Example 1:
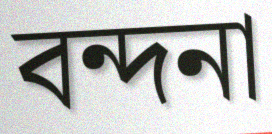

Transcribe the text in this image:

বন্দনা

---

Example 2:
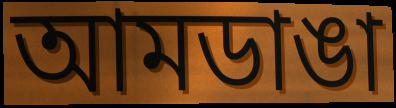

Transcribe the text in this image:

আমডাঙা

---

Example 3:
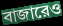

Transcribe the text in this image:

বাজারেও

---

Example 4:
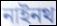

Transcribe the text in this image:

নাইনথ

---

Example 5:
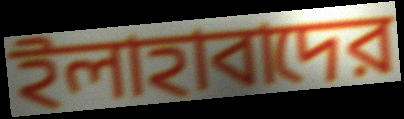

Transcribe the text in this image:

ইলাহাবাদের